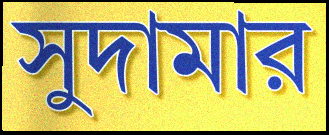
সুদামার